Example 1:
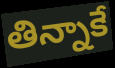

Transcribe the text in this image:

తిన్నాకే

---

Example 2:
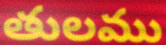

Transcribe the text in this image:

తులము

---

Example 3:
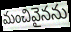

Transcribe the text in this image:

మంచివైనను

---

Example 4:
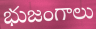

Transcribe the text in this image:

భుజంగాలు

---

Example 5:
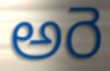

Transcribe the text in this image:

అరె